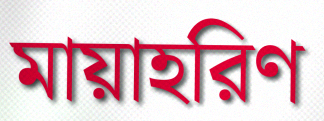
মায়াহরিণ